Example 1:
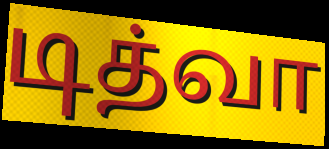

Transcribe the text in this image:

டித்வா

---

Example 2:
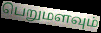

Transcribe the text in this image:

பெறுமளவும்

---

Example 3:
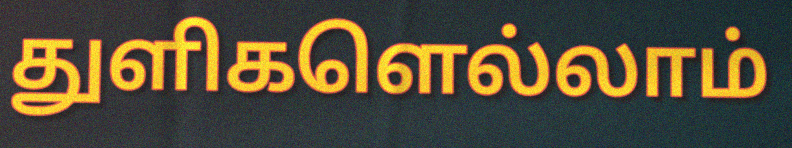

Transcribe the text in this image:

துளிகளெல்லாம்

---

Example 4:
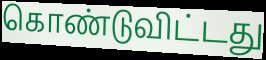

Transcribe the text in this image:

கொண்டுவிட்டது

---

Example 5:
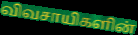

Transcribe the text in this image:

விவசாயிகளின்